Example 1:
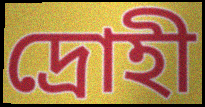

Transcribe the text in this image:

দ্ৰোহী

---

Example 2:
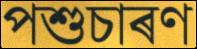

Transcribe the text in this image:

পশুচাৰণ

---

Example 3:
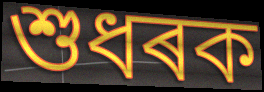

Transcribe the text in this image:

শুধৰক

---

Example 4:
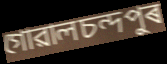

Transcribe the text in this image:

গোৱালচন্দপুৰ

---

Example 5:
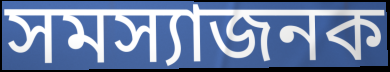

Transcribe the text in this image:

সমস্যাজনক